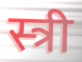
स्त्री